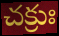
చక్రుః